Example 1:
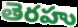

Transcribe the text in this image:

తెరహు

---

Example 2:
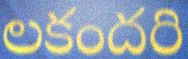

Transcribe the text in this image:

లకందరి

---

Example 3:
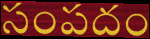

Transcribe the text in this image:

సంపదం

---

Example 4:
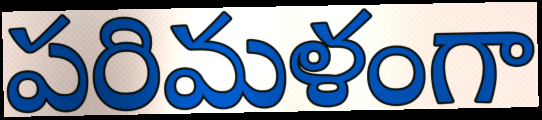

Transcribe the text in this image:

పరిమళంగా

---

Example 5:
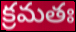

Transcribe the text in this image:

క్రమతః